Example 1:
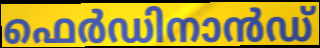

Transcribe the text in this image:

ഫെർഡിനാൻഡ്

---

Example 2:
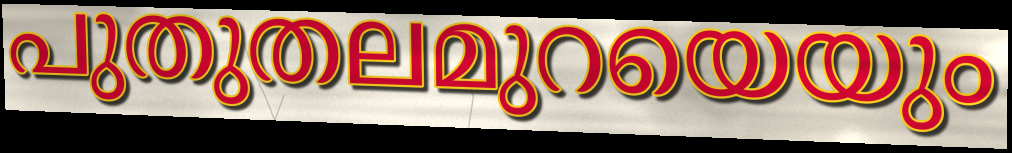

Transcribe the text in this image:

പുതുതലമുറയെയും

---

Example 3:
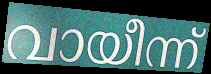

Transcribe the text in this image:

വായീന്ന്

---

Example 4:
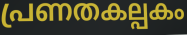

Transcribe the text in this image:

പ്രണതകല്പകം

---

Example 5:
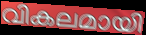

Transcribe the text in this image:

വികലമായി